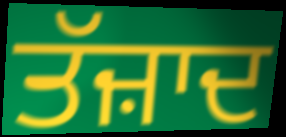
ਤੱਜ਼ਾਦ